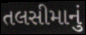
તલસીમાનું